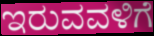
ಇರುವವಳಿಗೆ